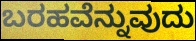
ಬರಹವೆನ್ನುವುದು